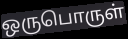
ஒருபொருள்